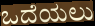
ಒದೆಯಲು